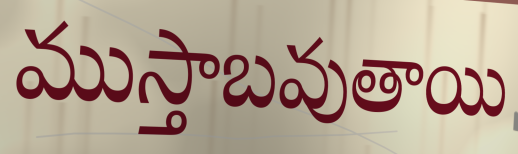
ముస్తాబవుతాయి